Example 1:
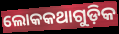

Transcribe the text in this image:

ଲୋକକଥାଗୁଡ଼ିକ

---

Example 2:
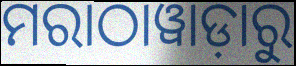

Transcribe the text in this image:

ମରାଠାୱାଡ଼ାରୁ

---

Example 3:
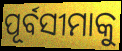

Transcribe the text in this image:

ପୂର୍ବସୀମାକୁ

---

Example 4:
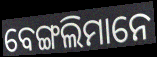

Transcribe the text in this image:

ବେଙ୍ଗଲିମାନେ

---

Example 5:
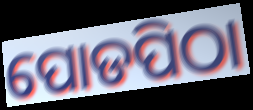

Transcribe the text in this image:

ପୋଡପିଠା